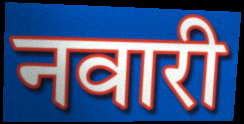
नवारी